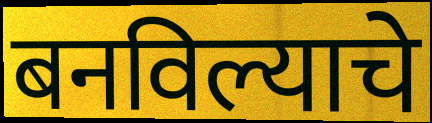
बनविल्याचे